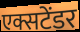
एक्सटेंडर